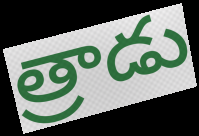
త్రాడు